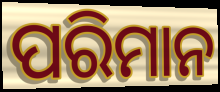
ପରିମାନ